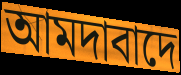
আমদাবাদে